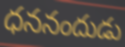
ధననందుడు